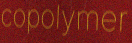
copolymer